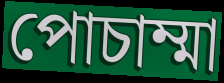
পোচাম্মা